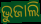
ଭୁଜାଲି